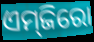
ଏମ୍‌ଜିରୋ